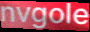
nvgole